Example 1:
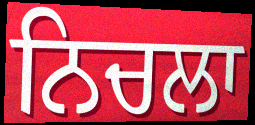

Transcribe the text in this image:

ਨਿਚਲਾ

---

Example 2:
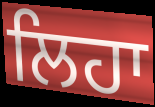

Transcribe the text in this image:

ਲਿਹਾ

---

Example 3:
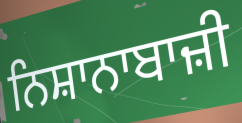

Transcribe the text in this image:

ਨਿਸ਼ਾਨਾਬਾਜ਼ੀ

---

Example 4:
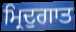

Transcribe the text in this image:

ਮ੍ਰਿਦੁਗਾਤ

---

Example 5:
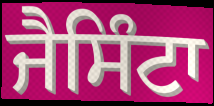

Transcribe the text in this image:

ਜੈਸਿੰਟਾ